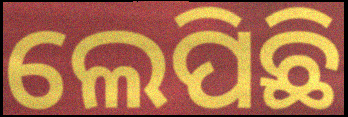
ଲେପିଛି